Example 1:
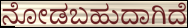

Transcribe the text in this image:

ನೋಡಬಹುದಾಗಿದೆ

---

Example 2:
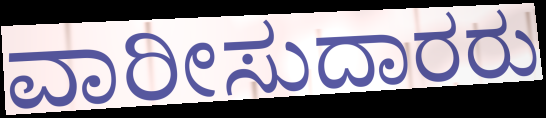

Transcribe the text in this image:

ವಾರೀಸುದಾರರು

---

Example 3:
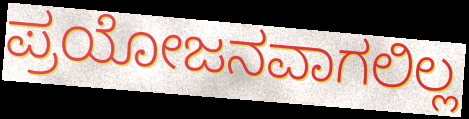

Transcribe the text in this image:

ಪ್ರಯೋಜನವಾಗಲಿಲ್ಲ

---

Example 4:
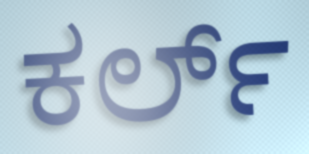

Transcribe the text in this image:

ಕರ್ಲ್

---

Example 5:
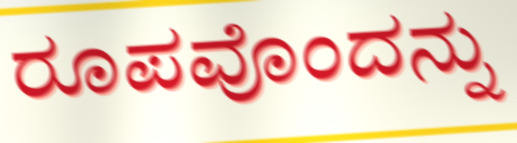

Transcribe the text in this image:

ರೂಪವೊಂದನ್ನು